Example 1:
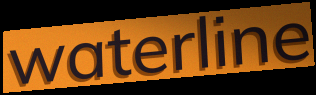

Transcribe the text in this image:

waterline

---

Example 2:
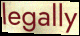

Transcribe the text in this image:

legally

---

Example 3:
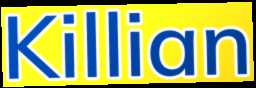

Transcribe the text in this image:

Killian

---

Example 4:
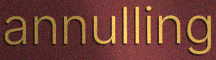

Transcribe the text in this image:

annulling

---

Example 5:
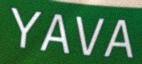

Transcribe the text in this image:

YAVA